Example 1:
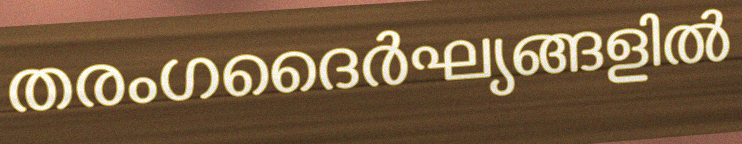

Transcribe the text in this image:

തരംഗദൈർഘ്യങ്ങളിൽ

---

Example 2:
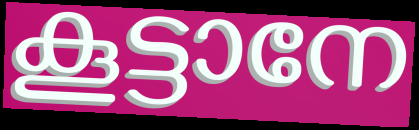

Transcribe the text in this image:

കൂട്ടാനേ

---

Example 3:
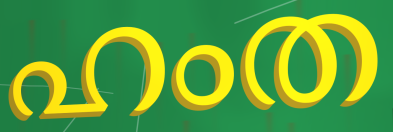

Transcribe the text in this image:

ഹംത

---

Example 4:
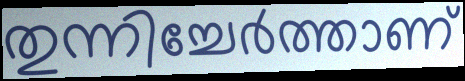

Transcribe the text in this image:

തുന്നിച്ചേർത്താണ്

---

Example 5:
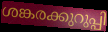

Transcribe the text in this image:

ശങ്കരക്കുറുപ്പി